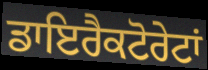
ਡਾਇਰੈਕਟੋਰੇਟਾਂ